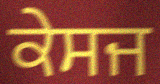
ਕੇਸਜ